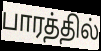
பாரத்தில்